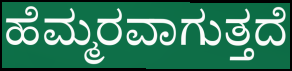
ಹೆಮ್ಮರವಾಗುತ್ತದೆ